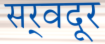
सर्वदूर